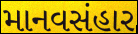
માનવસંહાર